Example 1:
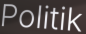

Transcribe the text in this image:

Politik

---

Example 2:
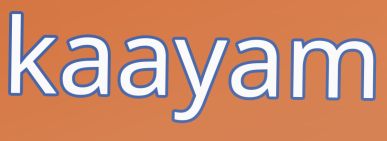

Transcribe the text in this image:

kaayam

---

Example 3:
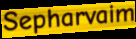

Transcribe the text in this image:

Sepharvaim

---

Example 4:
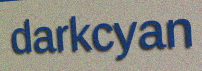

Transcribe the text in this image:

darkcyan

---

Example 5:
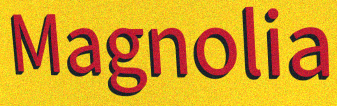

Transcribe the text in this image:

Magnolia